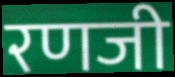
रणजी